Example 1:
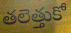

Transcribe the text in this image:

తలెత్తుకో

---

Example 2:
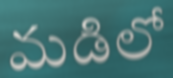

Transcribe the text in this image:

మడిలో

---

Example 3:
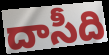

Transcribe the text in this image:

దాసీది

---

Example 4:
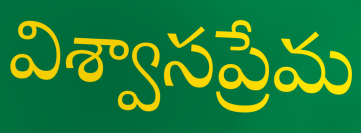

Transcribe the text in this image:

విశ్వాసప్రేమ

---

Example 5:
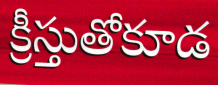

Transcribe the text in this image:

క్రీస్తుతోకూడ